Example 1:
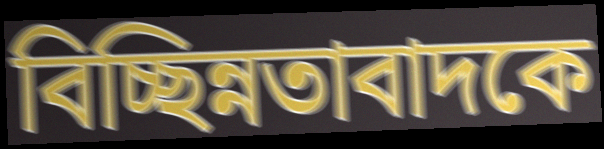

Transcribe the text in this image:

বিচ্ছিন্নতাবাদকে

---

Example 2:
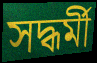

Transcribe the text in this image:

সদ্ধর্মী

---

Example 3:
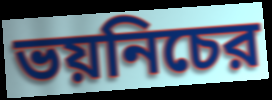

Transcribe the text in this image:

ভয়নিচের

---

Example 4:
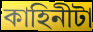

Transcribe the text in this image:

কাহিনীটা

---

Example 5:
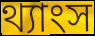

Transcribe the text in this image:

থ্যাংস